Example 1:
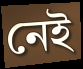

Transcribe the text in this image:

নেই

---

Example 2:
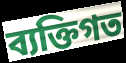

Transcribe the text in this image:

ব্যক্তিগত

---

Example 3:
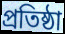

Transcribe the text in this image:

প্ৰতিষ্ঠা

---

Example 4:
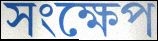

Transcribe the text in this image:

সংক্ষেপ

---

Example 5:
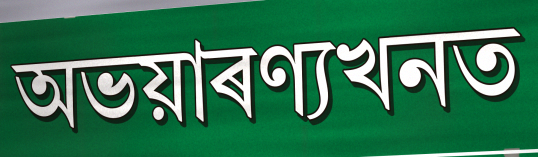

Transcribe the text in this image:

অভয়াৰণ্যখনত